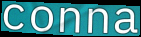
conna